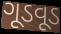
ગૂડવૂડ